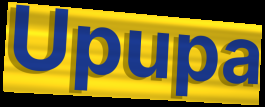
Upupa